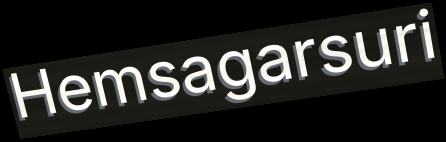
Hemsagarsuri